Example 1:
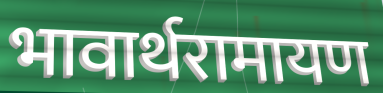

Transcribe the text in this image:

भावार्थरामायण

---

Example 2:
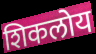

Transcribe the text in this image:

शिकलोय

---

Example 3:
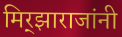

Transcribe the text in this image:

मिर्झाराजांनी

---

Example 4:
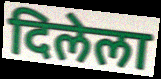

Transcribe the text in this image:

दिलेला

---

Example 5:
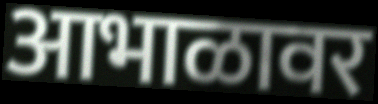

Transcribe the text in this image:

आभाळावर